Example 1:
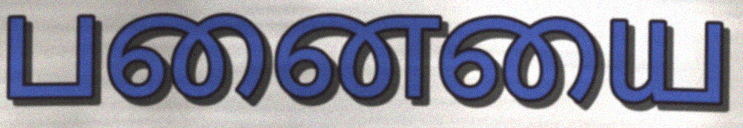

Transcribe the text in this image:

பனையை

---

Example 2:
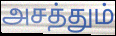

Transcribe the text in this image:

அசத்தும்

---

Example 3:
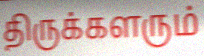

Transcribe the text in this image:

திருக்களரும்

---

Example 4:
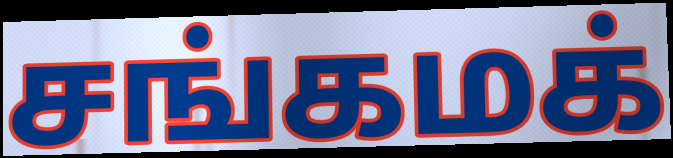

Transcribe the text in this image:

சங்கமக்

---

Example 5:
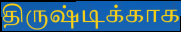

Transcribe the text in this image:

திருஷ்டிக்காக